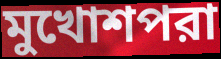
মুখোশপরা